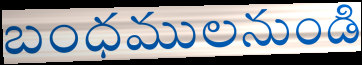
బంధములనుండి